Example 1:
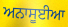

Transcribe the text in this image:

ਅਨਾਸੂਈਆ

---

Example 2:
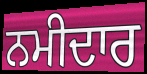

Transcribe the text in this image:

ਨਮੀਦਾਰ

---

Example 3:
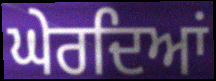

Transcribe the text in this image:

ਘੇਰਦਿਆਂ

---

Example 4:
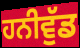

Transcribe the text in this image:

ਹਨੀਵੁੱਡ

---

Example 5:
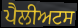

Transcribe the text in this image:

ਪੈਲੀਅਟਸ